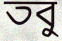
তবু